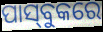
ପାସ୍‌ବୁକରେ